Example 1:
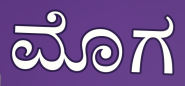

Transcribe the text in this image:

ಮೊಗ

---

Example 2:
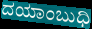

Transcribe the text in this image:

ದಯಾಂಬುಧಿ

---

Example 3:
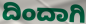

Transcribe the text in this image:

ದಿಂದಾಗಿ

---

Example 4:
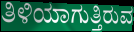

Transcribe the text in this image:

ತಿಳಿಯಾಗುತ್ತಿರುವ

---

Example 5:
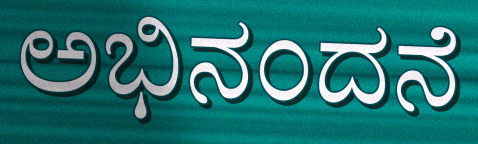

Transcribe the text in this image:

ಅಭಿನಂದನೆ